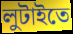
লুটাইতে